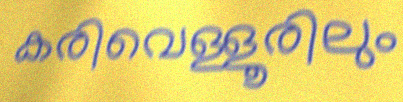
കരിവെള്ളൂരിലും